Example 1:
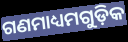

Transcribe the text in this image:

ଗଣମାଧ୍ୟମଗୁଡ଼ିକ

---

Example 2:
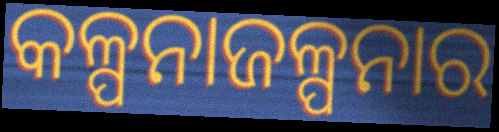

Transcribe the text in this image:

କଳ୍ପନାଜଳ୍ପନାର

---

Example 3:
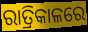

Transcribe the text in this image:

ରାତ୍ରିକାଳରେ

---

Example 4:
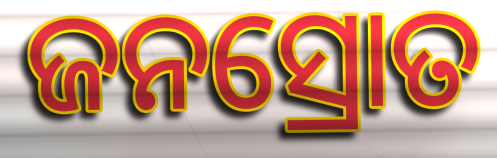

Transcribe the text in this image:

ଜନସ୍ରୋତ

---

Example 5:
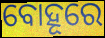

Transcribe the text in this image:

ବୋହୂରେ